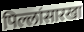
पिल्लांसारखा